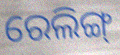
ରେଲିଙ୍ଗ୍